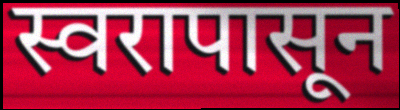
स्वरापासून